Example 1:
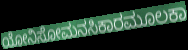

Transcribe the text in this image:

ಯೋನಿಸೋಮನಸಿಕಾರಮೂಲಕಾ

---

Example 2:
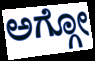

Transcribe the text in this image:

ಅಗ್ಗೋ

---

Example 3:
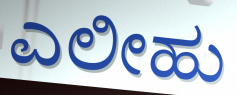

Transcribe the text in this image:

ಎಲೀಹು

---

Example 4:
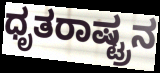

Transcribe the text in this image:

ಧೃತರಾಷ್ಟ್ರನ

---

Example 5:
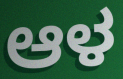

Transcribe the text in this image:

ಆಳ